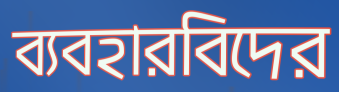
ব্যবহারবিদের